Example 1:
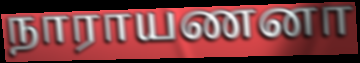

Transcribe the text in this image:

நாராயணனா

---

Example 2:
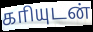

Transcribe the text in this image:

கரியுடன்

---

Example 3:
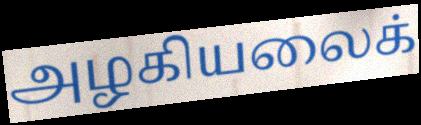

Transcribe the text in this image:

அழகியலைக்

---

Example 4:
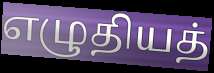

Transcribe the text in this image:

எழுதியத்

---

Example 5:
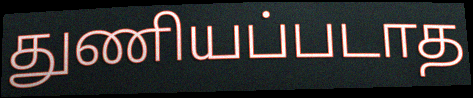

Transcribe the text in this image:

துணியப்படாத